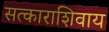
सत्काराशिवाय